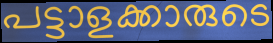
പട്ടാളക്കാരുടെ